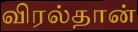
விரல்தான்